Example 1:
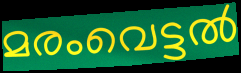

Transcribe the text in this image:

മരംവെട്ടൽ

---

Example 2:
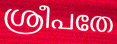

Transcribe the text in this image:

ശ്രീപതേ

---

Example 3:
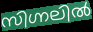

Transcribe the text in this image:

സിഗ്നലിൽ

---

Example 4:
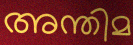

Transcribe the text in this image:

അന്തിമ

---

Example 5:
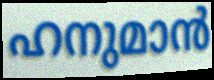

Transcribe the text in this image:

ഹനുമാൻ